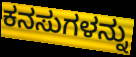
ಕನಸುಗಳನ್ನು